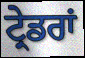
ਟ੍ਰੇਡਰਾਂ